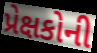
પ્રેક્ષકોની